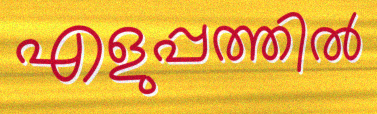
എളുപ്പത്തിൽ